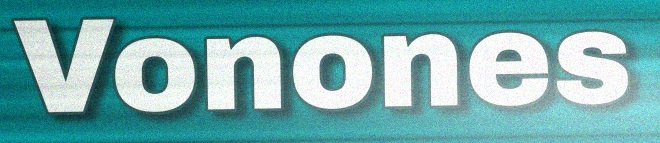
Vonones